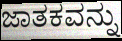
ಜಾತಕವನ್ನು